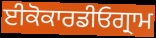
ਈਕੋਕਾਰਡੀਓਗ੍ਰਾਮ